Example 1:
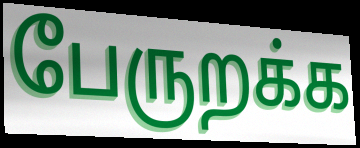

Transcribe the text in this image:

பேருறக்க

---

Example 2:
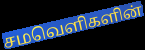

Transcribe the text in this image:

சமவெளிகளின்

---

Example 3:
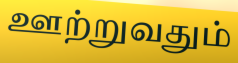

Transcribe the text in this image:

ஊற்றுவதும்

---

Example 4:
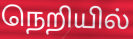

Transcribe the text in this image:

நெறியில்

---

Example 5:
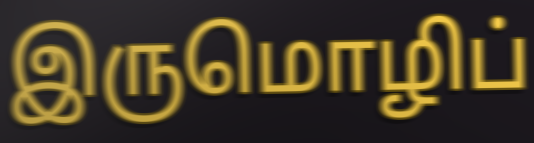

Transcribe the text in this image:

இருமொழிப்